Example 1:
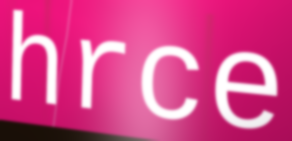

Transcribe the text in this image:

hrce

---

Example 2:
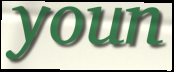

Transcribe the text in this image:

youn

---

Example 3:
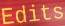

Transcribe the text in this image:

Edits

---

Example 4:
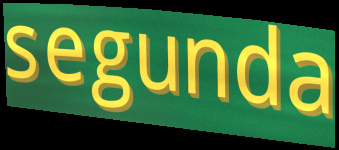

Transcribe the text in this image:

segunda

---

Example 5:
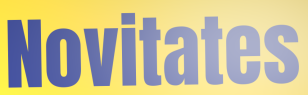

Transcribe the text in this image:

Novitates